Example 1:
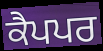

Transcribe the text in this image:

ਕੈਪਪਰ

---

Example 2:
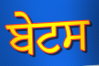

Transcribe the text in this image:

ਬੇਟਸ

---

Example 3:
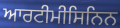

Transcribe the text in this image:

ਆਰਟੀਮੀਸਿਨਿਨ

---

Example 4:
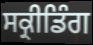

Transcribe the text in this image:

ਸਕ੍ਰੀਡਿੰਗ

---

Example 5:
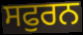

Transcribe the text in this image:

ਸਫੁਰਨ